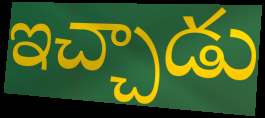
ఇచ్చాడు